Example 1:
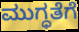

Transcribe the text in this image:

ಮುಗ್ಧತೆಗೆ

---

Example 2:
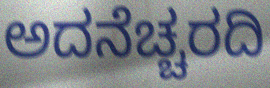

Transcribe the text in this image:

ಅದನೆಚ್ಚರದಿ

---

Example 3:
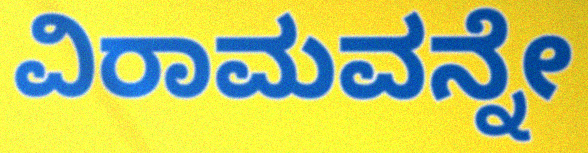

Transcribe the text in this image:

ವಿರಾಮವನ್ನೇ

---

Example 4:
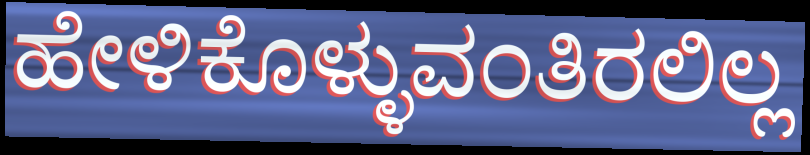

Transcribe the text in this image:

ಹೇಳಿಕೊಳ್ಳುವಂತಿರಲಿಲ್ಲ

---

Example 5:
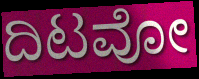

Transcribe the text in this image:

ದಿಟವೋ